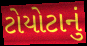
ટોયોટાનું